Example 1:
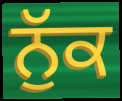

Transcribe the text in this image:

ਨੁੱਕ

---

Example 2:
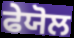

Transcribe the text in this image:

ਫੇਯੋਲ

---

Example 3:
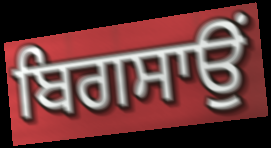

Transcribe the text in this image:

ਬਿਗਸਾਉਂ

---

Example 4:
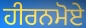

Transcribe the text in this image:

ਹੀਰਨਮੋਏ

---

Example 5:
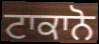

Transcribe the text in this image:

ਟਾਕਾਨੋ